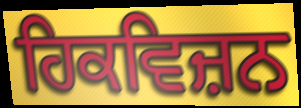
ਹਿਕਵਿਜ਼ਨ